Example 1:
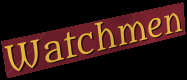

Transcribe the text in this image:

Watchmen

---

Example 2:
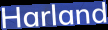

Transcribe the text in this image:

Harland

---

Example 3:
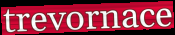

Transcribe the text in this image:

trevornace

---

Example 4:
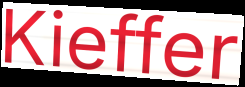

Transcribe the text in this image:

Kieffer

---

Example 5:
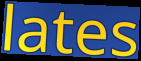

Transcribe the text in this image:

lates